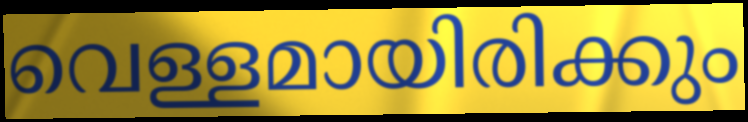
വെള്ളമായിരിക്കും